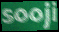
sooji